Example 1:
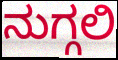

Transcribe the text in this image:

ನುಗ್ಗಲಿ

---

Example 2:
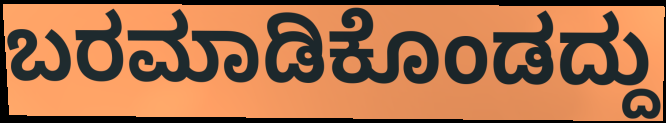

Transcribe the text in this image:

ಬರಮಾಡಿಕೊಂಡದ್ದು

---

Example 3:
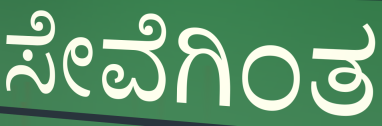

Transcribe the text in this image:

ಸೇವೆಗಿಂತ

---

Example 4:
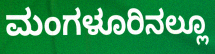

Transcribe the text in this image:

ಮಂಗಳೂರಿನಲ್ಲೂ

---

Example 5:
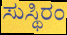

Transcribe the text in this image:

ಸುಸ್ಥಿರಂ